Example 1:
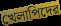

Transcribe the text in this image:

খেলাপিদের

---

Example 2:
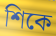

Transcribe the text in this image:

শিকে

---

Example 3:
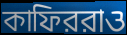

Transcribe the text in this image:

কাফিররাও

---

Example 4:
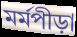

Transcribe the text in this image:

মর্মপীড়া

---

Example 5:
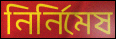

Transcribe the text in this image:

নির্নিমেষ